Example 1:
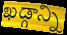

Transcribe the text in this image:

ఖడ్గాన్ని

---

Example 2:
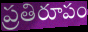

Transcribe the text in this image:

ప్రతిరూపం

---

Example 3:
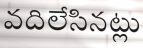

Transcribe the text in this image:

వదిలేసినట్లు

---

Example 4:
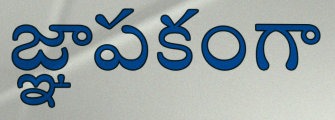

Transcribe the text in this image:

జ్ఞాపకంగా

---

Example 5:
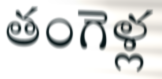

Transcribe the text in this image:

తంగెళ్ల